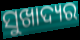
ସୁଖାଦ୍ୟର